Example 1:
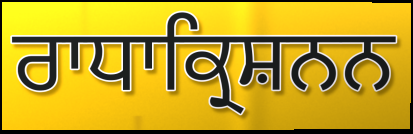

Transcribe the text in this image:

ਰਾਧਾਕ੍ਰਿਸ਼ਨਨ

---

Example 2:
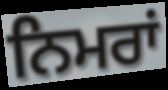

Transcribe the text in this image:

ਨਿਮਰਾਂ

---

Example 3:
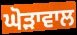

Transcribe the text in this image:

ਘੋੜਾਵਾਲ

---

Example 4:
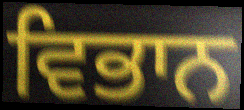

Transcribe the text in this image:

ਵਿਭਾਨ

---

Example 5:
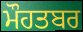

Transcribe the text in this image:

ਮੌਹਤਬਰ